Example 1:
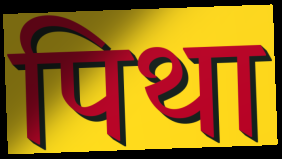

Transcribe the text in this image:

पिथा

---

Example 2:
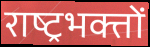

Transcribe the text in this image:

राष्ट्रभक्तों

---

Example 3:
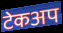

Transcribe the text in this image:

टेकअप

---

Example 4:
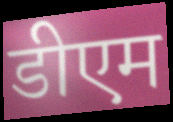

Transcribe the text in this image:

डीएम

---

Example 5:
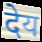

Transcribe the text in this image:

देय